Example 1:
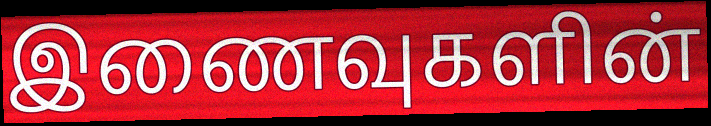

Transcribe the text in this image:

இணைவுகளின்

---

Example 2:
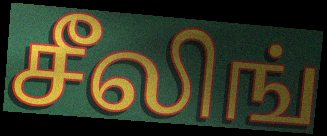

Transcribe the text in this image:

சீலிங்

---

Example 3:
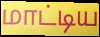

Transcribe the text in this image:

மாட்டிய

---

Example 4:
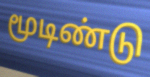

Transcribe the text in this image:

மூடிண்டு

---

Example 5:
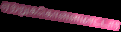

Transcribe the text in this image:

ஏற்றுக்கொள்ளமாட்டார்